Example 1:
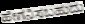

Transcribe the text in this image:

ಹೇಗನಿಸಬಹುದು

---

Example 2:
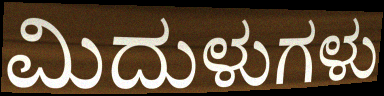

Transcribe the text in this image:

ಮಿದುಳುಗಳು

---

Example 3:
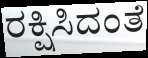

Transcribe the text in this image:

ರಕ್ಷಿಸಿದಂತೆ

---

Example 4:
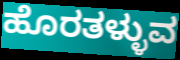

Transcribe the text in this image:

ಹೊರತಳ್ಳುವ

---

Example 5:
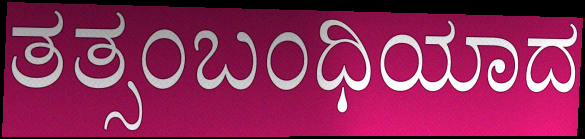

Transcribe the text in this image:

ತತ್ಸಂಬಂಧಿಯಾದ